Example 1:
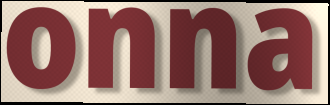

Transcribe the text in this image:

onna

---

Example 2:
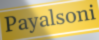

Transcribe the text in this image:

Payalsoni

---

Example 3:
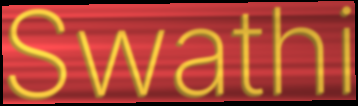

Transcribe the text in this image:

Swathi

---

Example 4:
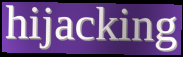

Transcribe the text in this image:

hijacking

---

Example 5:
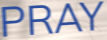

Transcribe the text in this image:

PRAY